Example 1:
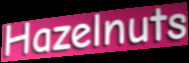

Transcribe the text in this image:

Hazelnuts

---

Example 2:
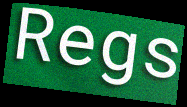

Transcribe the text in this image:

Regs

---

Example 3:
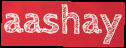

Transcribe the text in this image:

aashay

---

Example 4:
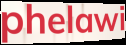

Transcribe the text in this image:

phelawi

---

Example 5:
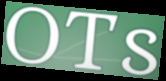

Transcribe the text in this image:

OTs